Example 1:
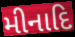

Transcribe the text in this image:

મીનાદિ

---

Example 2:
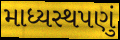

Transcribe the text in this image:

માધ્યસ્થપણું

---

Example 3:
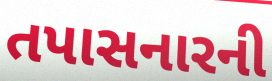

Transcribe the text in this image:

તપાસનારની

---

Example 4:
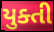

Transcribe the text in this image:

યુક્તી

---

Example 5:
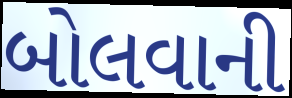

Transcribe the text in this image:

બોલવાની